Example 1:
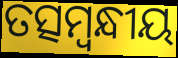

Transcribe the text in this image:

ତତ୍ସମ୍ବନ୍ଧୀୟ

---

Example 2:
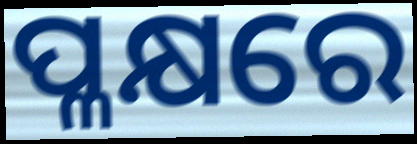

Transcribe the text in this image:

ପ୍ଳକ୍ଷରେ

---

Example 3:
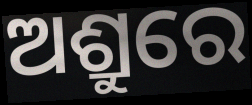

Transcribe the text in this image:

ଅଶ୍ରୁରେ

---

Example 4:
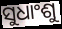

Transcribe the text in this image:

ସୁଧାଂଶୁ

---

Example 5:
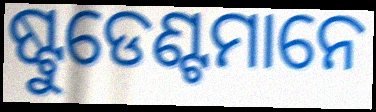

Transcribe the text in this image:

ଷ୍ଟୁଡେଣ୍ଟମାନେ